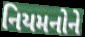
નિયમનોને